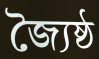
জ্যৈষ্ঠ